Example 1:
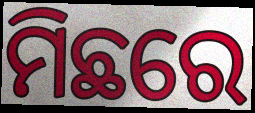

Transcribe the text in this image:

ମିଛରେ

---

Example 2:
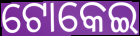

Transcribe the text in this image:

ଟୋକେଇ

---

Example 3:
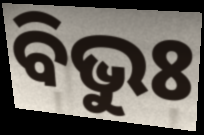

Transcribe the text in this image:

ବିଭୁଃ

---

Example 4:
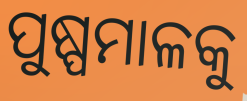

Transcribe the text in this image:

ପୁଷ୍ପମାଳକୁ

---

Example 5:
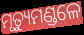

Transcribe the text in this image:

ମୃତ୍ୟୁମଣ୍ଡଳେ